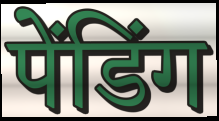
पेंडिंग